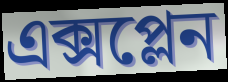
এক্সপ্লেন